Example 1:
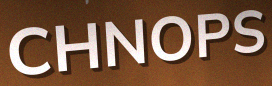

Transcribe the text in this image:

CHNOPS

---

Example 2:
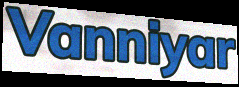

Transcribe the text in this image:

Vanniyar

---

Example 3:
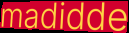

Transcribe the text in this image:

madidde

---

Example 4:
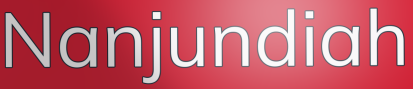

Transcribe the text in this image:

Nanjundiah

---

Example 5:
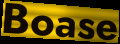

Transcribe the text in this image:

Boase